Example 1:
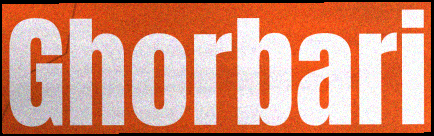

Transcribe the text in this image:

Ghorbari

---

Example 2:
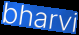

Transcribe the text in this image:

bharvi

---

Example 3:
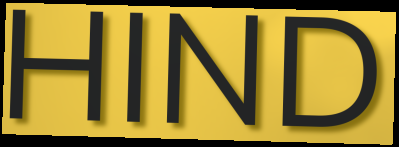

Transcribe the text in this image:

HIND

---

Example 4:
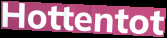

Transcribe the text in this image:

Hottentot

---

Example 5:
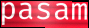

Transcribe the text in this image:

pasam